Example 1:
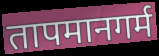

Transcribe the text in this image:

तापमानगर्म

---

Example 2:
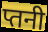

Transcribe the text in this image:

प्तनी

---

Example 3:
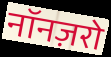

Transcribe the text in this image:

नॉनज़रो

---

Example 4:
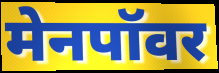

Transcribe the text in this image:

मेनपॉवर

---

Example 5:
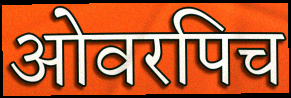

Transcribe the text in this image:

ओवरपिच